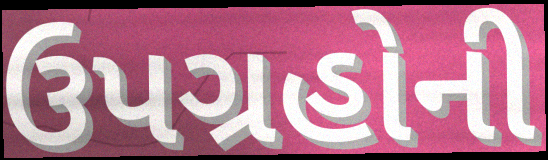
ઉપગ્રહોની